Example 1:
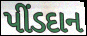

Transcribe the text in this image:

પીંડદાન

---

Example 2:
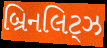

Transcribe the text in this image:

બ્રિનલિટ્ઝ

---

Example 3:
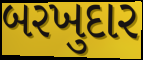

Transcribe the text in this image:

બરખુદાર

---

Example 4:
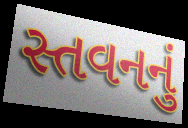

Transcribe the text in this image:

સ્તવનનું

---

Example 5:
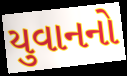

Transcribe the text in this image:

યુવાનનો